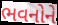
ભવનોને